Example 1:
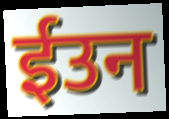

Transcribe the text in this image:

ईउन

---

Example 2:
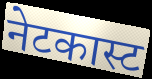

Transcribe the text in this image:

नेटकास्ट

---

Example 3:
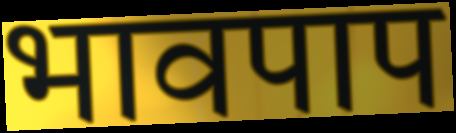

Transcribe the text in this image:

भावपाप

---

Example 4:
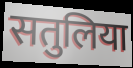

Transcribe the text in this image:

सतुलिया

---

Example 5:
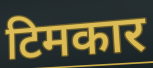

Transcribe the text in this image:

टिमकार